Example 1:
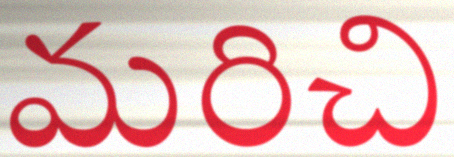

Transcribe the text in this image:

మరిచి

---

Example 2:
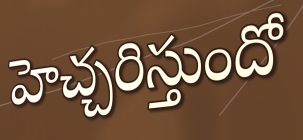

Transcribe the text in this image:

హెచ్చరిస్తుందో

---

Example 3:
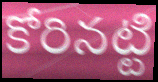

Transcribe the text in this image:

కోరినట్టి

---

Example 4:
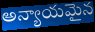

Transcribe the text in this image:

అన్యాయమైన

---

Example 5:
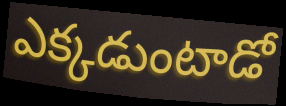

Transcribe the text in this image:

ఎక్కడుంటాడో